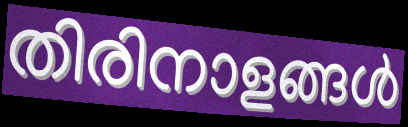
തിരിനാളങ്ങൾ